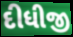
દીધીજી